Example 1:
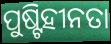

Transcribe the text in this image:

ପୁଷ୍ଟିହୀନତା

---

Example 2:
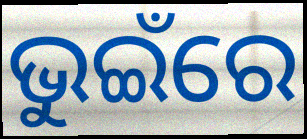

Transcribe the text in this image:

ଭୁଇଁରେ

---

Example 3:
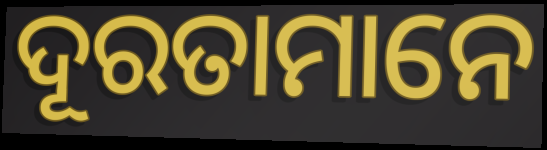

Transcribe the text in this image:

ଦୂରତାମାନେ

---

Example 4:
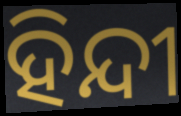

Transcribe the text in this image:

ହିନ୍ଦୀ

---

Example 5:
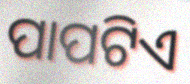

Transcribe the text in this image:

ପାପଟିଏ